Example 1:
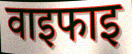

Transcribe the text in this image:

वाइफाइ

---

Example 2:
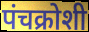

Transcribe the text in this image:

पंचक्रोशी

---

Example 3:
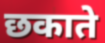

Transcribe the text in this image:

छकाते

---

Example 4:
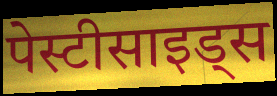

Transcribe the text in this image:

पेस्टीसाइड्स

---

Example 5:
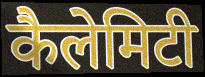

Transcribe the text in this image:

कैलेमिटी